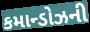
કમાન્ડોઝની